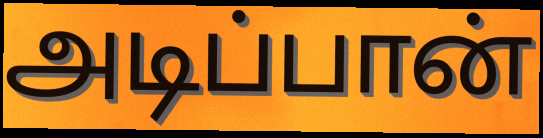
அடிப்பான்